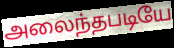
அலைந்தபடியே